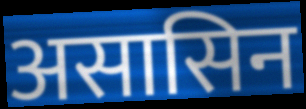
असासिन